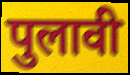
पुलावी